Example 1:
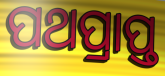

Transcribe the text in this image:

ପଥପ୍ରାପ୍ତ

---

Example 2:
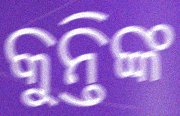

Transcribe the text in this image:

କୁନ୍ତିଙ୍କ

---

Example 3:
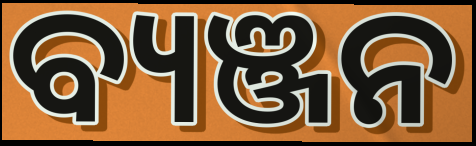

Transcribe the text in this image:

ବ୍ୟଞ୍ଜନ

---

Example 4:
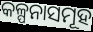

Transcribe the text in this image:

କଳ୍ପନାସମୂହ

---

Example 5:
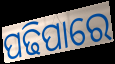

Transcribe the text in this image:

ପଢିପାରେ